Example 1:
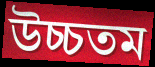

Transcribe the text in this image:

উচ্চতম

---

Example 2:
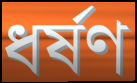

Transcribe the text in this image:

ধৰ্ষণ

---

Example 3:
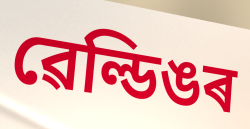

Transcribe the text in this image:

ৱেল্ডিঙৰ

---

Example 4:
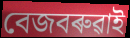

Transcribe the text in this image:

বেজবৰুৱাই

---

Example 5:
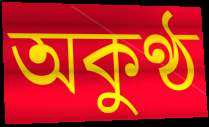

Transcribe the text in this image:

অকুণ্ঠ